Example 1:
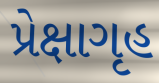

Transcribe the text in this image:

પ્રેક્ષાગૃહ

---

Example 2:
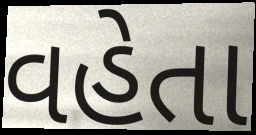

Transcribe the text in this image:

વહેતા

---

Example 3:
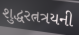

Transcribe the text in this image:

શુદ્ધરત્નત્રયની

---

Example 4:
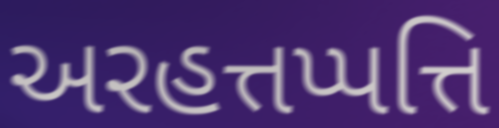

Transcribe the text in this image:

અરહત્તપ્પત્તિ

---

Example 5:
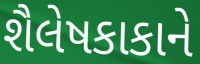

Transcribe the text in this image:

શૈલેષકાકાને